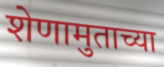
शेणामुताच्या